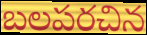
బలపరచిన